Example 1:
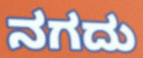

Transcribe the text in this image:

ನಗದು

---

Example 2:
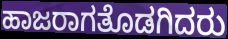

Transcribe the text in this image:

ಹಾಜರಾಗತೊಡಗಿದರು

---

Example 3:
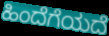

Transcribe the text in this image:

ಹಿಂದೆಗೆಯದೆ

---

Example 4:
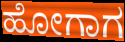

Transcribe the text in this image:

ಹೋಗಾಗ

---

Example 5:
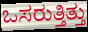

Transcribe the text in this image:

ಒಸರುತ್ತಿತ್ತು